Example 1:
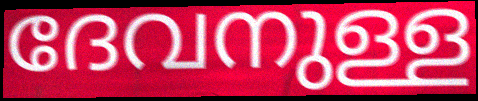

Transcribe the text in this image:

ദേവനുള്ള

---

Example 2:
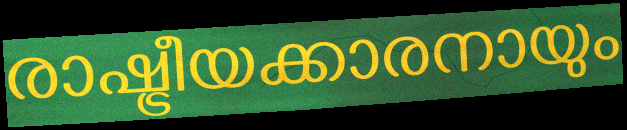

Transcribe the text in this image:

രാഷ്ട്രീയക്കാരനായും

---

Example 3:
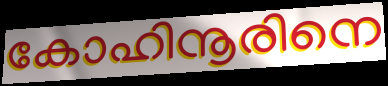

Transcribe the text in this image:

കോഹിനൂരിനെ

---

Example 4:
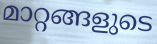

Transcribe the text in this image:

മാറ്റങ്ങളുടെ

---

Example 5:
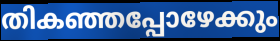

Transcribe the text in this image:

തികഞ്ഞപ്പോഴേക്കും